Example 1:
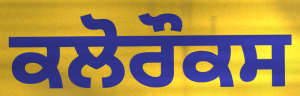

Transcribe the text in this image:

ਕਲੋਰੌਕਸ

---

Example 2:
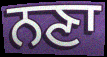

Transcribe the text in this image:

ਨਣਾ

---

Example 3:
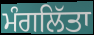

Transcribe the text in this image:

ਮੰਗਲਿੱਤਾ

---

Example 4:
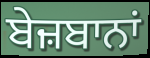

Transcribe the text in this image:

ਬੇਜ਼ਬਾਨਾਂ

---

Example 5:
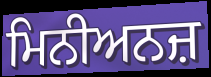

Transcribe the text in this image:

ਮਿਨੀਅਨਜ਼